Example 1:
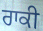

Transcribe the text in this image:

ਰਾਕੀ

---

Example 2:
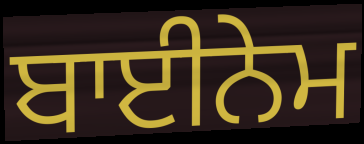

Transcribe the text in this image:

ਬਾਈਨੇਮ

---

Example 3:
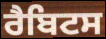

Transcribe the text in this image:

ਰੈਬਿਟਸ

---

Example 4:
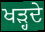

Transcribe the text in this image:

ਖੜ੍ਹਦੇ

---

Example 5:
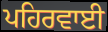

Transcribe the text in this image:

ਪਹਿਰਵਾਈ